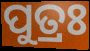
ପୁତ୍ରଃ